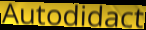
Autodidact